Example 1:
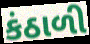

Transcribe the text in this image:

કંઠાળી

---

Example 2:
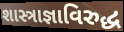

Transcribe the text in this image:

શાસ્ત્રાજ્ઞાવિરુદ્ધ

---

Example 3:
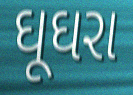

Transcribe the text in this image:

ઘૂઘરા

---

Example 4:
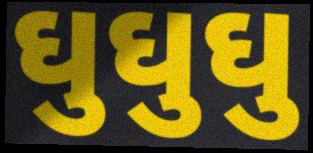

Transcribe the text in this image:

ઘુઘુઘુ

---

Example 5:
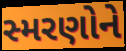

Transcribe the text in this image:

સ્મરણોને